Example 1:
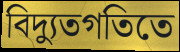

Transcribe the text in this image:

বিদ্যুতগতিতে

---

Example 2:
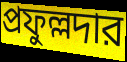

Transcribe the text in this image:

প্রফুল্লদার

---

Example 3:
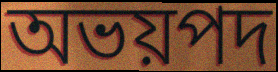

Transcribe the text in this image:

অভয়পদ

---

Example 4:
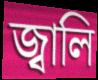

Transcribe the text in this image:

জ্বালি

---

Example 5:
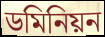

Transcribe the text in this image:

ডমিনিয়ন